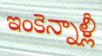
ఇంకెన్నాళ్లీ